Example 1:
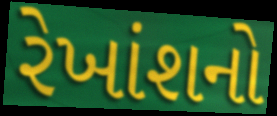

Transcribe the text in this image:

રેખાંશનો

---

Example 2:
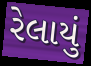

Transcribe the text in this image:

રેલાયું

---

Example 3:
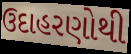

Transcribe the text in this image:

ઉદાહરણોથી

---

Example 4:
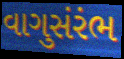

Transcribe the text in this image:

વાગુસંરંભ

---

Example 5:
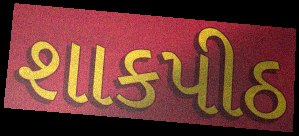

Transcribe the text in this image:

શાકપીઠ